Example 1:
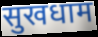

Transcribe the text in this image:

सुखधाम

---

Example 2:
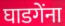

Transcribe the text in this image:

घाडगेंना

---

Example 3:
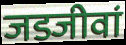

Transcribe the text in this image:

जडजीवां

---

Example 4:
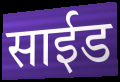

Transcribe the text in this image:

साईड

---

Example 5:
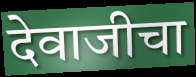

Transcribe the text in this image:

देवाजीचा